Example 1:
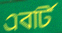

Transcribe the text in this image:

এবার্ট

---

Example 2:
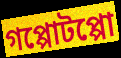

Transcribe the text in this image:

গপ্পোটপ্পো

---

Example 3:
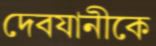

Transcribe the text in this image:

দেবযানীকে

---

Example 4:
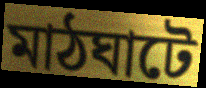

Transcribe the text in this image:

মাঠঘাটে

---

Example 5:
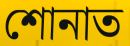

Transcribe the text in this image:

শোনাত